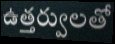
ఉత్తర్వులతో